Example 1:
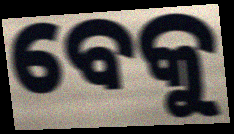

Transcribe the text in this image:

ବେକୁ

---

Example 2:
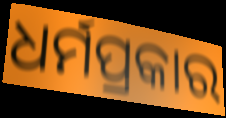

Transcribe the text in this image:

ଧର୍ମପ୍ରକାର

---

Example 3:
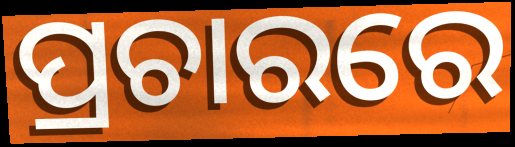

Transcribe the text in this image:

ପ୍ରଚାରରେ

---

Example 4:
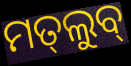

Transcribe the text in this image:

ମତ୍‌ଲୁବ୍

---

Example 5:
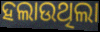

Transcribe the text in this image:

ହଲାଉଥିଲା